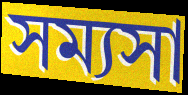
সম্যসা